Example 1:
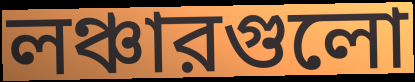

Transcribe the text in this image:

লঞ্চারগুলো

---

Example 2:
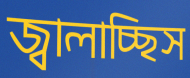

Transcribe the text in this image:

জ্বালাচ্ছিস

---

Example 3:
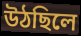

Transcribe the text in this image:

উঠছিলে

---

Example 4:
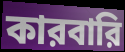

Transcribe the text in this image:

কারবারি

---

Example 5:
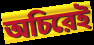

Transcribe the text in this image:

অচিরেই